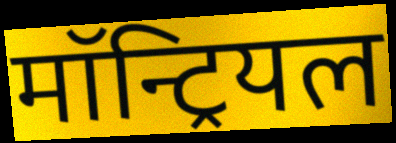
मॉन्ट्रियल